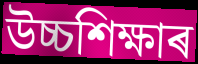
উচ্চশিক্ষাৰ